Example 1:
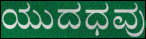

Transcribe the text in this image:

ಯುದಧವು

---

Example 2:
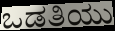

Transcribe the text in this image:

ಒಡತಿಯು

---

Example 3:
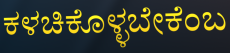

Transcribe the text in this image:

ಕಳಚಿಕೊಳ್ಳಬೇಕೆಂಬ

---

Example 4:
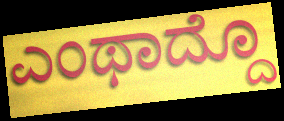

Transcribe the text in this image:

ಎಂಥಾದ್ದೊ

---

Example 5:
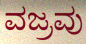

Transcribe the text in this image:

ವಜ್ರವು